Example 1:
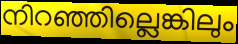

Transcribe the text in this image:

നിറഞ്ഞില്ലെങ്കിലും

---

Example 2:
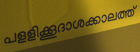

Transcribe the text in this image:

പളളിക്കൂദാശക്കാലത്ത്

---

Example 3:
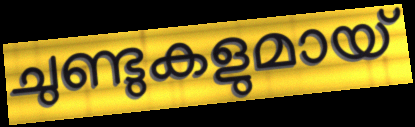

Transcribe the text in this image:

ചുണ്ടുകളുമായ്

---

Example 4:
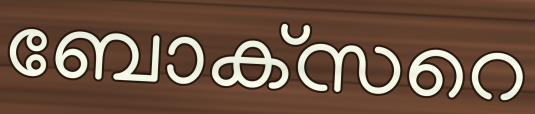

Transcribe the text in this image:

ബോക്‌സറെ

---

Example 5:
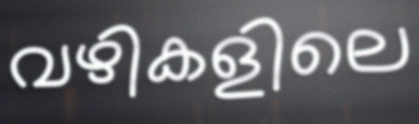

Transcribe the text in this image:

വഴികളിലെ